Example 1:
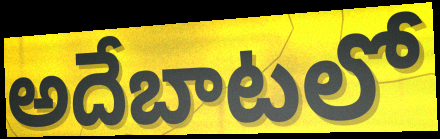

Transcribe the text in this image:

అదేబాటలో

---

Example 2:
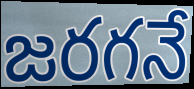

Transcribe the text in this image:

జరగనే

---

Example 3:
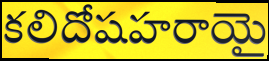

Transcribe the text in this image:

కలిదోషహరాయై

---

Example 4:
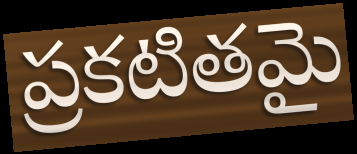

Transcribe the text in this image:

ప్రకటితమై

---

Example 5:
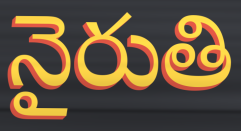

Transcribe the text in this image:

నైరుతి